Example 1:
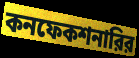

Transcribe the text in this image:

কনফেকশনারির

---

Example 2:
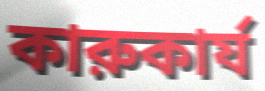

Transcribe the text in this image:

কারুকার্য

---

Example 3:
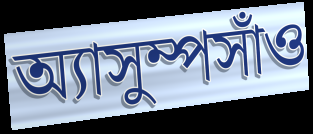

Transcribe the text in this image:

অ্যাসুম্পসাঁও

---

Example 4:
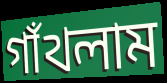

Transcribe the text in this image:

গাঁথলাম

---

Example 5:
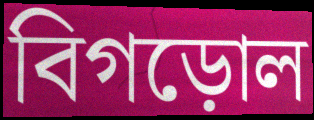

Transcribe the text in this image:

বিগড়োল